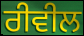
ਰੀਵੀਲ